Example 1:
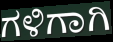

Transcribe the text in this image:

ಗಳಿಗಾಗಿ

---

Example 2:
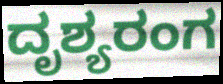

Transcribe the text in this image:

ದೃಶ್ಯರಂಗ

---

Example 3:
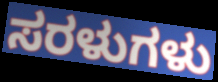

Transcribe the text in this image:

ಸರಳುಗಳು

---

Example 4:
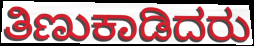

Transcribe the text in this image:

ತಿಣುಕಾಡಿದರು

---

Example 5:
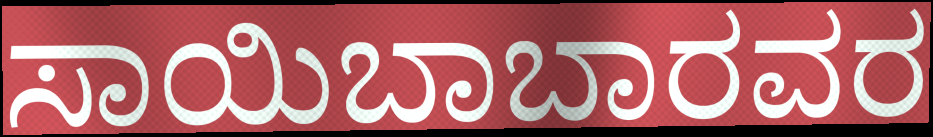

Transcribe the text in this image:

ಸಾಯಿಬಾಬಾರವರ